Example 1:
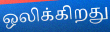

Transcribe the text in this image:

ஒலிக்கிறது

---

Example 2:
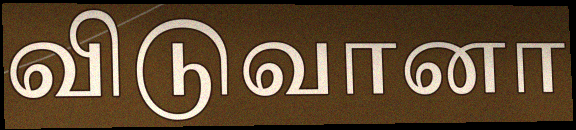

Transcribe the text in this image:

விடுவானா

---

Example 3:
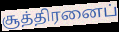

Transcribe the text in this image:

சூத்திரனைப்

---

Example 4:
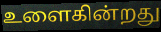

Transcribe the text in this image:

உளைகின்றது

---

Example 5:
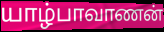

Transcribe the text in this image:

யாழ்பாவாணன்